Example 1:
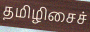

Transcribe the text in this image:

தமிழிசைச்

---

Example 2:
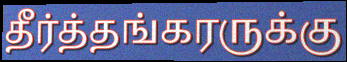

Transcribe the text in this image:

தீர்த்தங்கரருக்கு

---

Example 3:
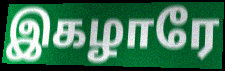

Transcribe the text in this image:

இகழாரே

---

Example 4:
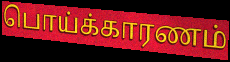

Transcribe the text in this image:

பொய்க்காரணம்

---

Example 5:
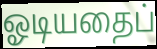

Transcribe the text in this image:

ஓடியதைப்